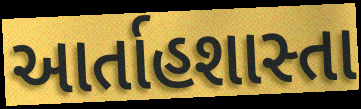
આર્તાહશાસ્તા